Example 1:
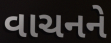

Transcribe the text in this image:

વાચનને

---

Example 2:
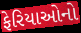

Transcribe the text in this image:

ફેરિયાઓનો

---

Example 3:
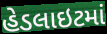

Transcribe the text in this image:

હેડલાઇટમાં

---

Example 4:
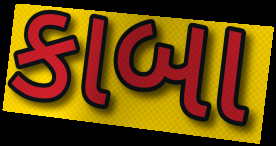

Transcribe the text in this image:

કાબા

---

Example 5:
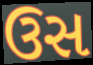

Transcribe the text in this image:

ઉસ